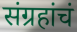
संग्रहांचं